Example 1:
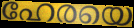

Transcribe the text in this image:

ഹേരയെ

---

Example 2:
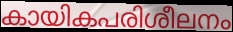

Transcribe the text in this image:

കായികപരിശീലനം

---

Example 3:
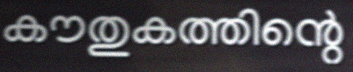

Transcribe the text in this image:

കൗതുകത്തിന്റെ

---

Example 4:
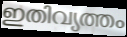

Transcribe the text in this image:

ഇതിവ്യത്തം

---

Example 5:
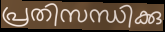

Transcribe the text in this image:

പ്രതിസന്ധിക്കു